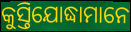
କୁସ୍ତିଯୋଦ୍ଧାମାନେ